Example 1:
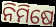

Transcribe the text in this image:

ନିମିଷେ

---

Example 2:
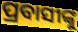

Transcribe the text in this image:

ପ୍ରବାସୀଙ୍କୁ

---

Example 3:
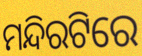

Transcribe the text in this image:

ମନ୍ଦିରଟିରେ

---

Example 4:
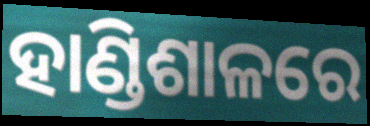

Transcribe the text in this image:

ହାଣ୍ଡିଶାଳରେ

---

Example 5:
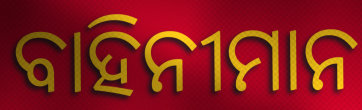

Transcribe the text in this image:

ବାହିନୀମାନ